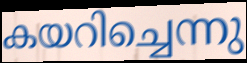
കയറിച്ചെന്നു